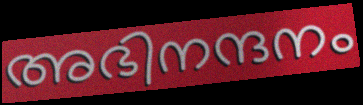
അഭിനന്ദനം